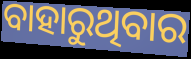
ବାହାରୁଥିବାର